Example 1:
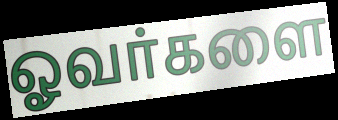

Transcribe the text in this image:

ஓவர்களை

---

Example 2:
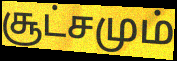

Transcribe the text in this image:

சூட்சமும்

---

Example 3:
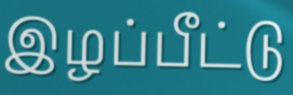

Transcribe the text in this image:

இழப்பீட்டு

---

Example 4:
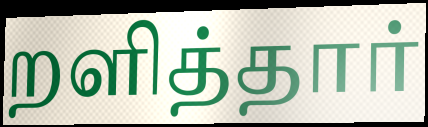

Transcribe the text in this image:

றளித்தார்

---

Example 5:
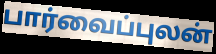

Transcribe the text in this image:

பார்வைப்புலன்